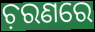
ଚ଼ରଣରେ